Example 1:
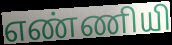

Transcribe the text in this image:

எண்ணியி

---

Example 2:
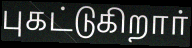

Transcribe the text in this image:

புகட்டுகிறார்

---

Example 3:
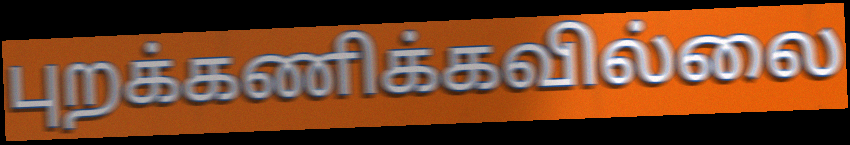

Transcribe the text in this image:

புறக்கணிக்கவில்லை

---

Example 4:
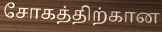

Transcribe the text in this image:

சோகத்திற்கான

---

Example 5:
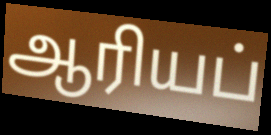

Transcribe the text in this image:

ஆரியப்